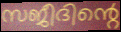
സജീദിന്റെ